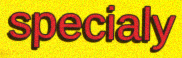
specialy